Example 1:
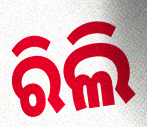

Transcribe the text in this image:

ରିଲି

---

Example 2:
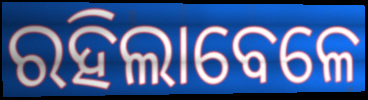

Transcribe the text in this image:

ରହିଲାବେଳେ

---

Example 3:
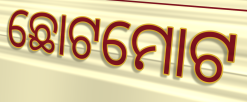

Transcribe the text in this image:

ଛୋଟମୋଟ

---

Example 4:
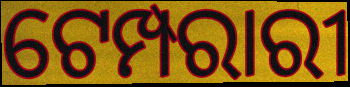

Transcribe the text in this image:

ଟେମ୍ପରାରୀ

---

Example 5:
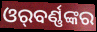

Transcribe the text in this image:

ଓର୍‌ବର୍ଣ୍ଣଙ୍କର